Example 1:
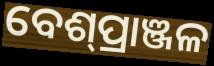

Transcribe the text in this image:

ବେଶ୍‌ପ୍ରାଞ୍ଜଳ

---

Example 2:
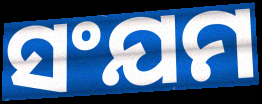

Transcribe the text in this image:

ସଂଯମ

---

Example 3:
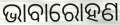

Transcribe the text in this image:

ଭାବାରୋହଣ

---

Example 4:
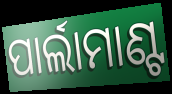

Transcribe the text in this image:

ପାର୍ଲାମାଣ୍ଟ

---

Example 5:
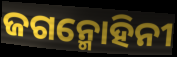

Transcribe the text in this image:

ଜଗନ୍ମୋହିନୀ